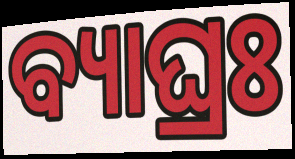
ବ୍ୟାଘ୍ରଃ